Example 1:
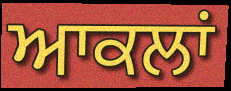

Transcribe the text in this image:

ਆਕਲਾਂ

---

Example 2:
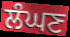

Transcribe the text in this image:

ਲੰਘਣ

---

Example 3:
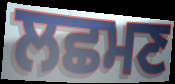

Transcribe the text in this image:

ਲਛਮਣ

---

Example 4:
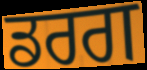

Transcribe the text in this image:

ਡਰਗ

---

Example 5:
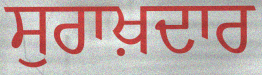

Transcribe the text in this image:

ਸੁਰਾਖ਼ਦਾਰ